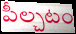
పీల్చటం